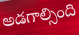
అడగాల్సింది